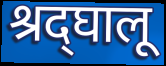
श्रद्घालू